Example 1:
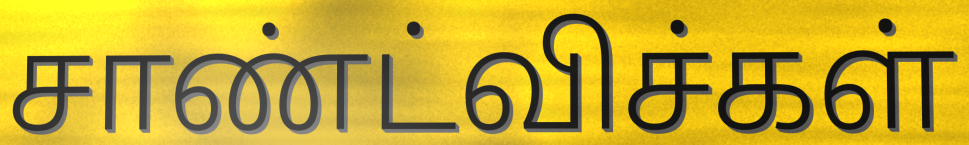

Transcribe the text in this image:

சாண்ட்விச்கள்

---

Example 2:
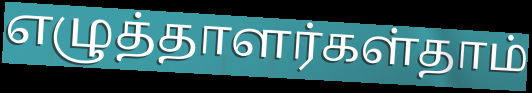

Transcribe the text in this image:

எழுத்தாளர்கள்தாம்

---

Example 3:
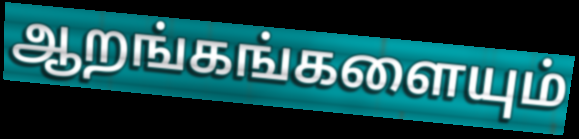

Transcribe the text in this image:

ஆறங்கங்களையும்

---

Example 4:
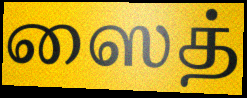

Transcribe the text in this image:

ஸைத்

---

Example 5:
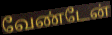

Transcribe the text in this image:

வேண்டேன்